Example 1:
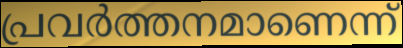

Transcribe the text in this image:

പ്രവർത്തനമാണെന്ന്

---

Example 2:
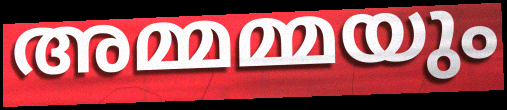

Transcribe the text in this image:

അമ്മമ്മയും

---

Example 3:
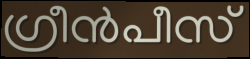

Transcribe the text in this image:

ഗ്രീൻപീസ്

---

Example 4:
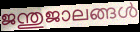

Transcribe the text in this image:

ജന്തുജാലങ്ങൾ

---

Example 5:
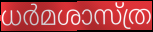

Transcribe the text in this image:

ധർമശാസ്ത്ര